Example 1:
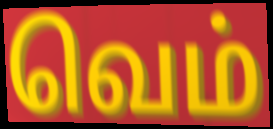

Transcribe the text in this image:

வெம்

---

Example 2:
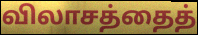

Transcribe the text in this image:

விலாசத்தைத்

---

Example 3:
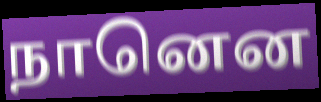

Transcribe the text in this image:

நானென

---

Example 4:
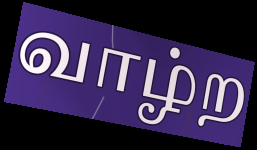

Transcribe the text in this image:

வாழ்ற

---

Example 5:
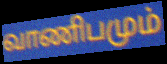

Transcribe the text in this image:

வாணிபமும்